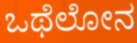
ಒಥೆಲೋನ